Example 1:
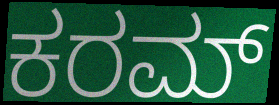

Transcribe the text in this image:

ಕರಮ್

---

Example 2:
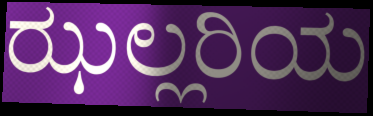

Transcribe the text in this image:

ಝಲ್ಲರಿಯ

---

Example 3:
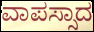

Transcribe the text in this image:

ವಾಪಸ್ಸಾದ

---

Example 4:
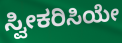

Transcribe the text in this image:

ಸ್ವೀಕರಿಸಿಯೇ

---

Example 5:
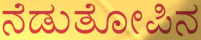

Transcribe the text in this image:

ನೆಡುತೋಪಿನ